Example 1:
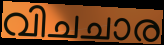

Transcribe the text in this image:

വിചചാര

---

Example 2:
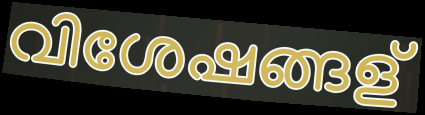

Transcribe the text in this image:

വിശേഷങ്ങള്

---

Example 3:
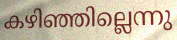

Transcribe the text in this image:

കഴിഞ്ഞില്ലെന്നു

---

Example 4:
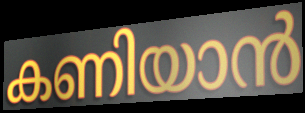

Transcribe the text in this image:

കണിയാൻ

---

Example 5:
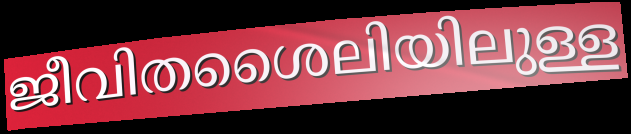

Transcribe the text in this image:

ജീവിതശൈലിയിലുള്ള